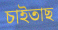
চাইতাছ